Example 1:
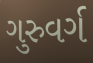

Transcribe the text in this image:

ગુરુવર્ગ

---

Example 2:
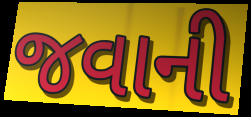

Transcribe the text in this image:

જવાની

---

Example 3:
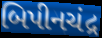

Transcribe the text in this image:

બિપીનચંદ્ર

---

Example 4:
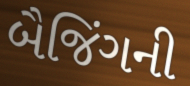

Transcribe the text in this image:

બૈજિંગની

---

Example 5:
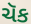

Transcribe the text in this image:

ચૅક